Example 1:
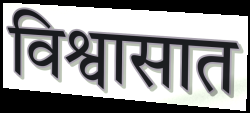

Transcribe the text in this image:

विश्वासात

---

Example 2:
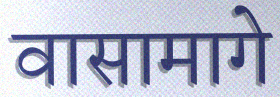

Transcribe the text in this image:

वासामागे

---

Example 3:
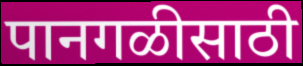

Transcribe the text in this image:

पानगळीसाठी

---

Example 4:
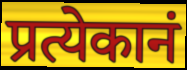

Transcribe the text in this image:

प्रत्येकानं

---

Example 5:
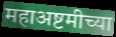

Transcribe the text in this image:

महाअष्टमीच्या